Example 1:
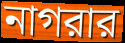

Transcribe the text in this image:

নাগরার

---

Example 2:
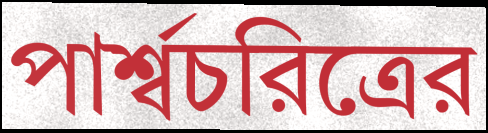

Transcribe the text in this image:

পার্শ্বচরিত্রের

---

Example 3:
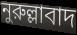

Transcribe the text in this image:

নুরুল্লাবাদ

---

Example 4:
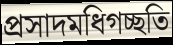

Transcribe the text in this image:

প্রসাদমধিগচ্ছতি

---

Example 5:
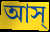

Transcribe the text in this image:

আস্